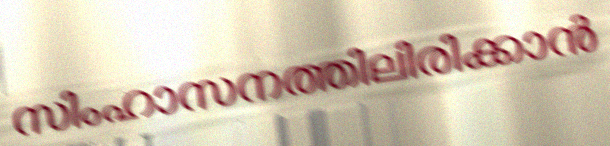
സിംഹാസനത്തിലിരിക്കാൻ